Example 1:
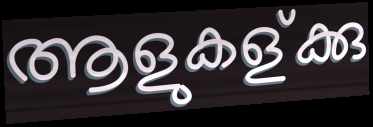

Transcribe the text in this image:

ആളുകള്ക്കു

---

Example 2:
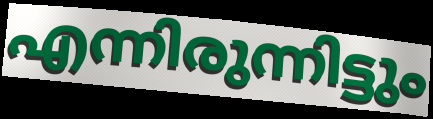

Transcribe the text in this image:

എന്നിരുന്നിട്ടും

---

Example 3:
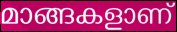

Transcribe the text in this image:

മാങ്ങകളാണ്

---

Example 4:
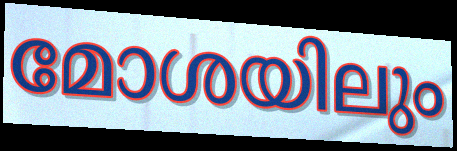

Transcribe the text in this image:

മോശയിലും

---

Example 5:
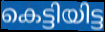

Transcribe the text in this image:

കെട്ടിയിട്ട